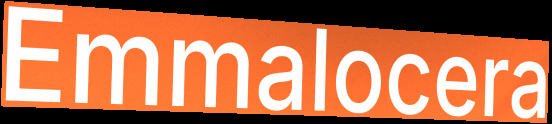
Emmalocera